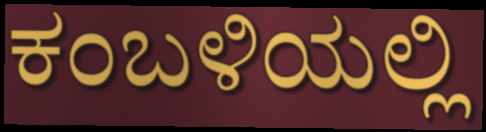
ಕಂಬಳಿಯಲ್ಲಿ